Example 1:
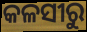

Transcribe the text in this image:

କଳସୀରୁ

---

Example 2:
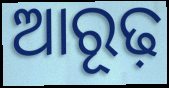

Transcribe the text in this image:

ଆରୂଢ଼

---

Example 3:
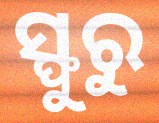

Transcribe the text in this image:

ସ୍ଫୁରୁ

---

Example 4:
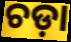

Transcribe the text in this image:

ଚଡ଼ା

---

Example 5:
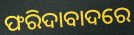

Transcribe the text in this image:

ଫରିଦାବାଦରେ